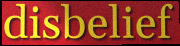
disbelief